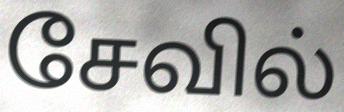
சேவில்